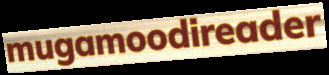
mugamoodireader